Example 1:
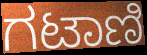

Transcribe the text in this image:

ಗಟಾಣಿ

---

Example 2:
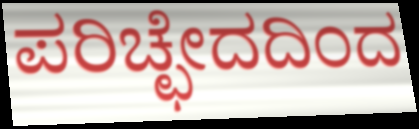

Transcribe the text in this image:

ಪರಿಚ್ಛೇದದಿಂದ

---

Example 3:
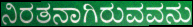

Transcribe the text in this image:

ನಿರತನಾಗಿರುವವನು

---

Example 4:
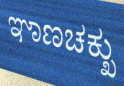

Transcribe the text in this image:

ಞಾಣಚಕ್ಖು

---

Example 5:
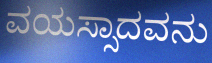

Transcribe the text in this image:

ವಯಸ್ಸಾದವನು